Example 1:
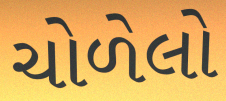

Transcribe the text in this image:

ચોળેલો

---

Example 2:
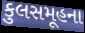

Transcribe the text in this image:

કુલસમૂહના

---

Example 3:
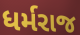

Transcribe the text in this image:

ધર્મરાજ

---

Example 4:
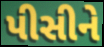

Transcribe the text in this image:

પીસીને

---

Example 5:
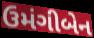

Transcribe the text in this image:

ઉમંગીબેન